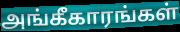
அங்கீகாரங்கள்